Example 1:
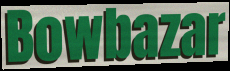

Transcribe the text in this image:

Bowbazar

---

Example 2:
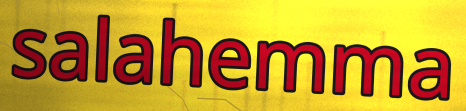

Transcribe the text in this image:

salahemma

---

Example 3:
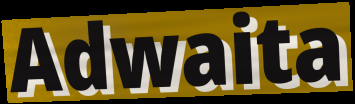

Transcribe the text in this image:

Adwaita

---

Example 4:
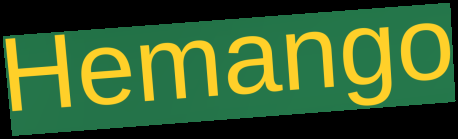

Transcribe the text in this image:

Hemango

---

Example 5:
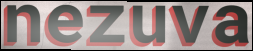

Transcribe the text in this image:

nezuva